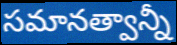
సమానత్వాన్నీ